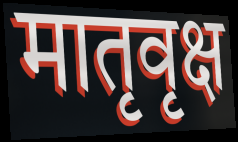
मातृवृक्ष